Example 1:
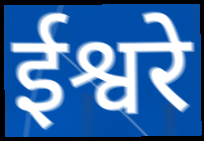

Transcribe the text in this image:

ईश्वरे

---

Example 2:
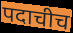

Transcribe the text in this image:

पदाचीच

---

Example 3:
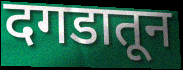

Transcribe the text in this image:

दगडातून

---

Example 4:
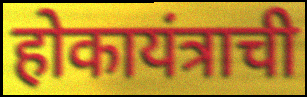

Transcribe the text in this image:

होकायंत्राची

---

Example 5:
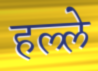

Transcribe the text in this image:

हल्ले